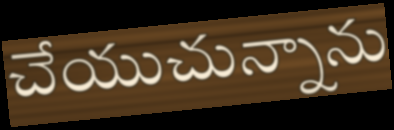
చేయుచున్నాను